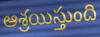
ఆశ్రయిస్తుంది